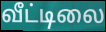
வீட்டிலை